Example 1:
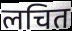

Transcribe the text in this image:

लचित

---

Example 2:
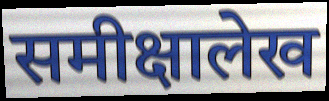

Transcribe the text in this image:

समीक्षालेख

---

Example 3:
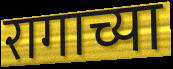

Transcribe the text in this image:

रागाच्या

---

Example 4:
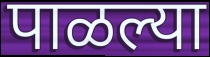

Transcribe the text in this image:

पाळल्या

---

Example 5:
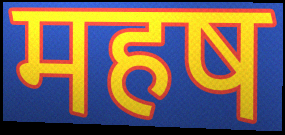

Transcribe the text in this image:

महष